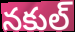
నకుల్